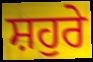
ਸ਼ਹੁਰੇ